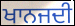
ਖਾਨਜਦੀ